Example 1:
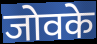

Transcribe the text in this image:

जोवके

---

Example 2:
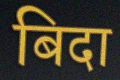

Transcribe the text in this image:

बिदा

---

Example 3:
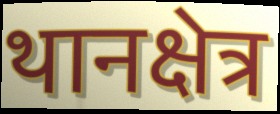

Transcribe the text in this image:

थानक्षेत्र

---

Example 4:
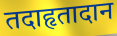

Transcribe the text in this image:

तदाहृतादान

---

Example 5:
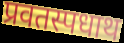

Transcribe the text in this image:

प्रवतस्पधाथ